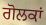
ਗੋਲਕਾਂ